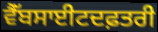
ਵੈੱਬਸਾਈਟਦਫ਼ਤਰੀ